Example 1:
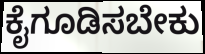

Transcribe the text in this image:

ಕೈಗೂಡಿಸಬೇಕು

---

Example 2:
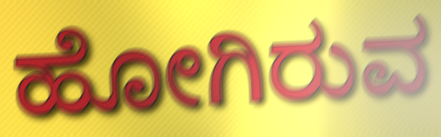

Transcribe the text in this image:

ಹೋಗಿರುವ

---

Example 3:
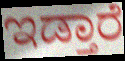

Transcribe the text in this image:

ಇಡ್ತಾರೆ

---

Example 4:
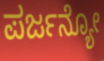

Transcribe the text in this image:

ಪರ್ಜನ್ಯೋ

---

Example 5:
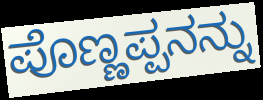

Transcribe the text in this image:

ಪೊಣ್ಣಪ್ಪನನ್ನು